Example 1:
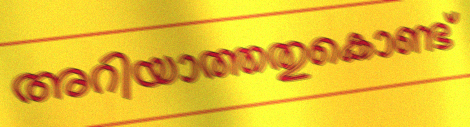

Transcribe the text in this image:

അറിയാത്തതുകൊണ്ട്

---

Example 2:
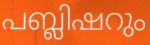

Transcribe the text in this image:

പബ്ലിഷറും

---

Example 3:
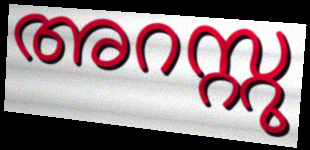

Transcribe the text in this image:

അറസ്റ്റു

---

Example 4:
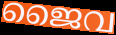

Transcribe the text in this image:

ജൈവ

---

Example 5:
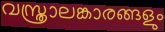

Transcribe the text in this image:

വസ്ത്രാലങ്കാരങ്ങളും